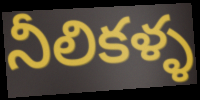
నీలికళ్ళ